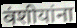
वंशीयांना